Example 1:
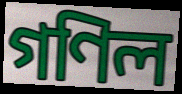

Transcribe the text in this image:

গণিল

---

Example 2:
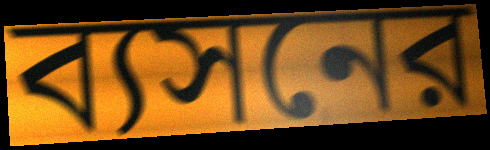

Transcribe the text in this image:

ব্যসনের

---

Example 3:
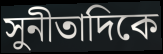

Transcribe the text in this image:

সুনীতাদিকে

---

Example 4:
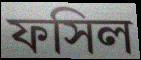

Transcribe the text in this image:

ফসিল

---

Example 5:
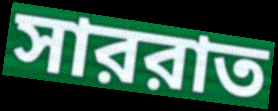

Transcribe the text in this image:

সাররাত